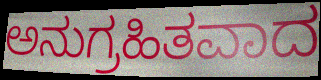
ಅನುಗ್ರಹಿತವಾದ